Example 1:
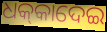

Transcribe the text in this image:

ଧକ୍‌କାଦେଇ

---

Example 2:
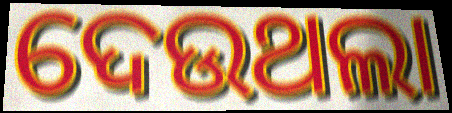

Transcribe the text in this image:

ଦେଉଥଲା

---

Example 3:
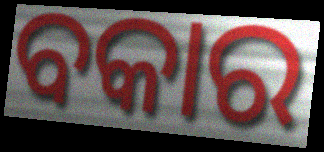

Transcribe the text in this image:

ବକାର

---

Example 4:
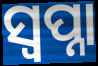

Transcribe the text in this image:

ସ୍ୱପ୍ନା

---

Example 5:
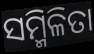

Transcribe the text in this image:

ସମ୍ମିଳିତା